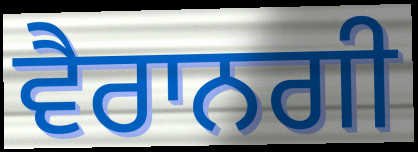
ਵੈਰਾਨਗੀ